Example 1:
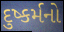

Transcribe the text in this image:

દુષ્કર્મનો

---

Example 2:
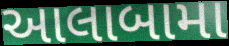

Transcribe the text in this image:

આલાબામા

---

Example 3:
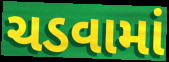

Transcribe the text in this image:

ચડવામાં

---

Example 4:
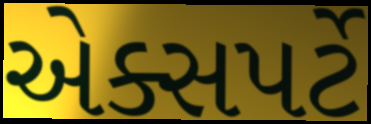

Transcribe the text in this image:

એક્સપર્ટે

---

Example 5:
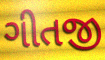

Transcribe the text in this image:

ગીતજી